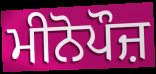
ਮੀਨੋਪੌਜ਼